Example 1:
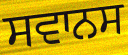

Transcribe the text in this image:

ਸਵਾਨਸ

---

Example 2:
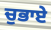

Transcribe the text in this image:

ਚੁਭਾਏ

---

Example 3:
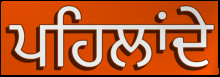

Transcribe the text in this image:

ਪਹਿਲਾਂਦੇ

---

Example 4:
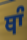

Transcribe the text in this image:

ਥਾੰ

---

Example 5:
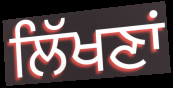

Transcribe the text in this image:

ਲਿੱਖਣਾਂ